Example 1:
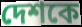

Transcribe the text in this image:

দেশকে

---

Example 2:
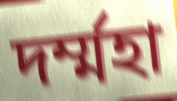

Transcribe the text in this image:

দৰ্ম্মহা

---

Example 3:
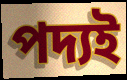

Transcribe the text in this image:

পদ্যই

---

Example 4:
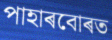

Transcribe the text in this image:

পাহাৰবোৰত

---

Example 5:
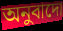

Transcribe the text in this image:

অনুবাদো